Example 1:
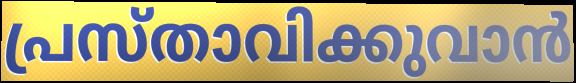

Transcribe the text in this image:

പ്രസ്താവിക്കുവാൻ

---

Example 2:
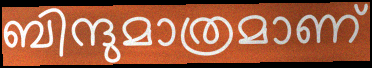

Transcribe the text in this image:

ബിന്ദുമാത്രമാണ്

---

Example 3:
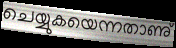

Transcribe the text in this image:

ചെയ്യുകയെന്നതാണു്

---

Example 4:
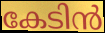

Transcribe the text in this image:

കേടിൻ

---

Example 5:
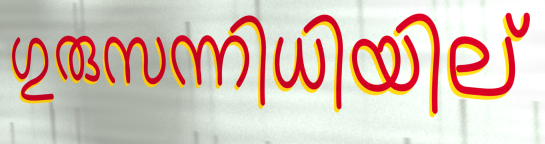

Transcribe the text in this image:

ഗുരുസന്നിധിയില്